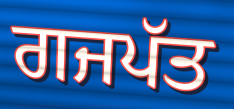
ਗਜਪੱਤ